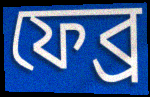
ফেব্র